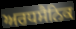
ਅਰਧਸੈਨਿਕ